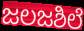
ಜಲಜಶಿಲೆ